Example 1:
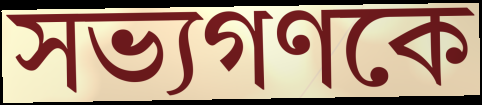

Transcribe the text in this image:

সভ্যগণকে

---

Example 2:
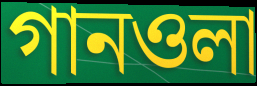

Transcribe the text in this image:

গানওলা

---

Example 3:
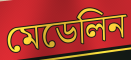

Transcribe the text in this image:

মেডেলিন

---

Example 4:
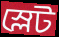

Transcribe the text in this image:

স্লেট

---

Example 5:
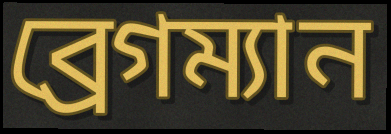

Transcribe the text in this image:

ব্রেগম্যান